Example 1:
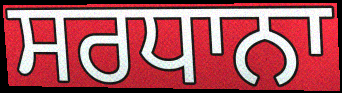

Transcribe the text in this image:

ਸਰਧਾਨਾ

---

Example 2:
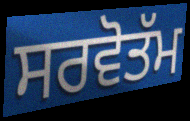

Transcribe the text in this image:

ਸਰਵੋਤੱਮ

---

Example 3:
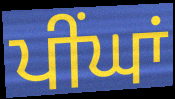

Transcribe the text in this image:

ਪੀਂਘਾਂ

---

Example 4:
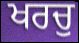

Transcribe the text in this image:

ਖਰਚੁ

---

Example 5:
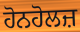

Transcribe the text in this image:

ਹੋਨਹੋਲਜ਼